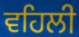
ਵਹਿਲੀ